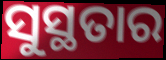
ସୁସ୍ଥତାର